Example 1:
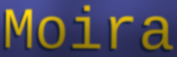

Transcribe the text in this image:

Moira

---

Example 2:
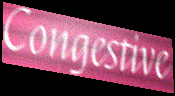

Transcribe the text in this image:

Congestive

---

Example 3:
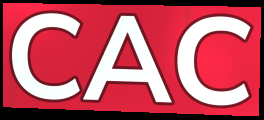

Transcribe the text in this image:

CAC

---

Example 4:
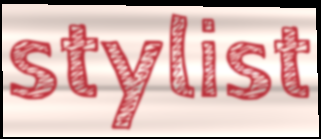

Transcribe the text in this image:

stylist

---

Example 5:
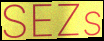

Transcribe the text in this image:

SEZs